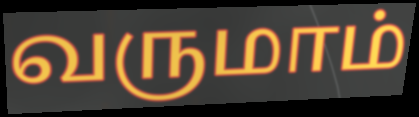
வருமாம்